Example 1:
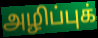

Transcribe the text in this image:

அழிப்புக்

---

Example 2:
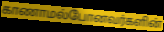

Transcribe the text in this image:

காணாமல்போனவர்களின்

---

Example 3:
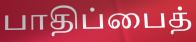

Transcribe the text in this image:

பாதிப்பைத்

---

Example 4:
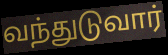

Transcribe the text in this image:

வந்துடுவார்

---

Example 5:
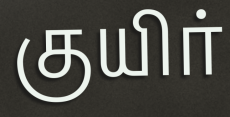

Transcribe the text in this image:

குயிர்